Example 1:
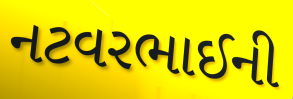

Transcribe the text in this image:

નટવરભાઈની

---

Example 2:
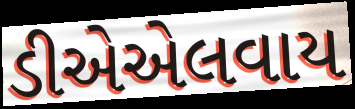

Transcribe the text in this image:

ડીએએલવાય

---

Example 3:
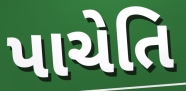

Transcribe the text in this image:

પાચેતિ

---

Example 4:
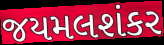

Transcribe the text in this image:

જયમલશંકર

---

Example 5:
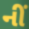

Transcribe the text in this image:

નીં